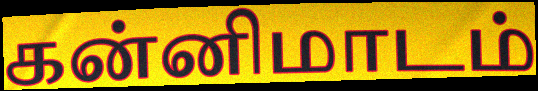
கன்னிமாடம்